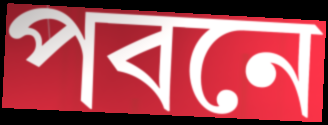
পবনে